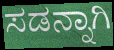
ಸಡನ್ನಾಗಿ